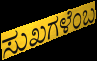
ಸುಖಗಳೆಂಬ